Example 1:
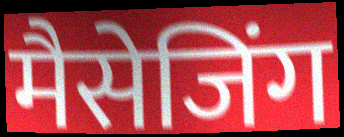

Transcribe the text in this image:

मैसेजिंग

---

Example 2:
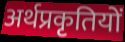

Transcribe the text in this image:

अर्थप्रकृतियों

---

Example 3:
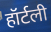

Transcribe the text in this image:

हॉर्टली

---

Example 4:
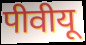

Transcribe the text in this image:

पीवीयू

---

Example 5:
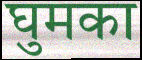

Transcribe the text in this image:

घुमका